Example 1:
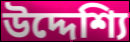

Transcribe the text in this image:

উদ্দেশ্যি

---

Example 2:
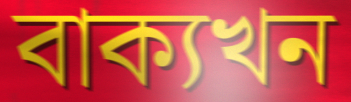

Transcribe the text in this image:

বাক্যখন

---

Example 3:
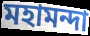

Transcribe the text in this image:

মহামন্দা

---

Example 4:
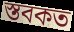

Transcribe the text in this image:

স্তবকত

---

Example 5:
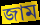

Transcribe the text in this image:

জাম